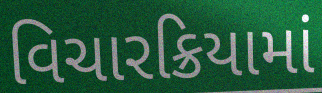
વિચારક્રિયામાં